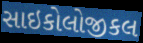
સાઇકોલોજીકલ